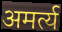
अमर्त्य